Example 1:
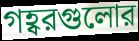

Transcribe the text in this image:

গহ্বরগুলোর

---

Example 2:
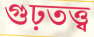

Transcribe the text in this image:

গুঢ়তত্ত্ব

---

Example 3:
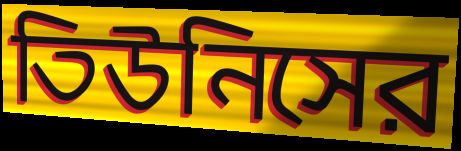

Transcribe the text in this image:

তিউনিসের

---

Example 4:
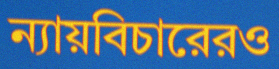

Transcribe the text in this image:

ন্যায়বিচারেরও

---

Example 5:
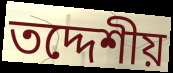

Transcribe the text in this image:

তদ্দেশীয়